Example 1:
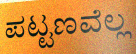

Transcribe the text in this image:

ಪಟ್ಟಣವೆಲ್ಲ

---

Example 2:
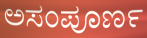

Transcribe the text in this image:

ಅಸಂಪೂರ್ಣ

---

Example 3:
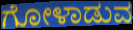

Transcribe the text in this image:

ಗೋಳಾಡುವ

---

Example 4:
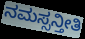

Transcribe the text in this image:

ನಮಸ್ಸನ್ತೀತಿ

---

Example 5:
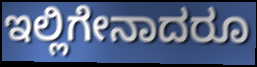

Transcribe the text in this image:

ಇಲ್ಲಿಗೇನಾದರೂ